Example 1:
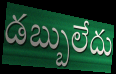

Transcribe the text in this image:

డబ్బులేదు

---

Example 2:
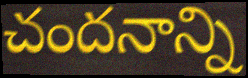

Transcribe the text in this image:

చందనాన్ని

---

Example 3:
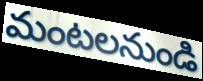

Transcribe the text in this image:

మంటలనుండి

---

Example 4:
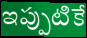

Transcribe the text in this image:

ఇప్పుటికే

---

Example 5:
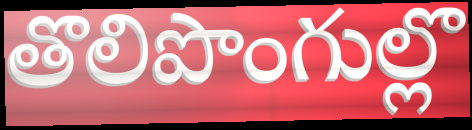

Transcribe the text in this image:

తొలిపొంగుల్లొ